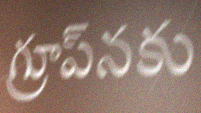
గ్రూప్‌నకు